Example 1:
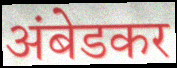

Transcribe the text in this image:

अंबेडकर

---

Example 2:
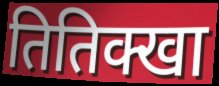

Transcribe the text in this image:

तितिक्खा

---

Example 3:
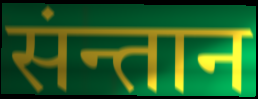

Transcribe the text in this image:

संन्तान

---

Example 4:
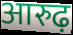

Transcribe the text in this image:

आरुढ़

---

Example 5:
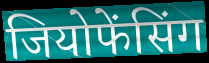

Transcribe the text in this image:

जियोफेंसिंग